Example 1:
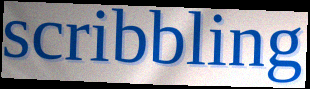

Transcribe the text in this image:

scribbling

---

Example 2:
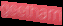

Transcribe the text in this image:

geetham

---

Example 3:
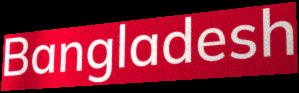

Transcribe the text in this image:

Bangladesh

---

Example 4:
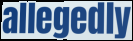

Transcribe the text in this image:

allegedly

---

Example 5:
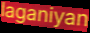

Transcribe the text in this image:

laganiyan